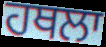
ਹਥਲਾ